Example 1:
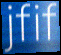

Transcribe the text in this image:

jfif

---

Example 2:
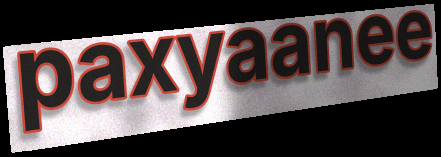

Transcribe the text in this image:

paxyaanee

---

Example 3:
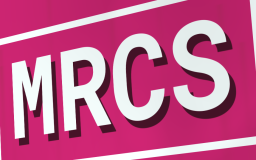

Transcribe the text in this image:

MRCS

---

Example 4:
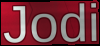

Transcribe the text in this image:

Jodi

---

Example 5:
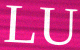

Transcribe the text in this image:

LU